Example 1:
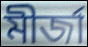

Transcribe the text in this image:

মীর্জা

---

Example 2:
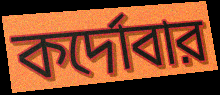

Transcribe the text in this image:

কর্দোবার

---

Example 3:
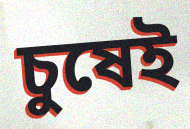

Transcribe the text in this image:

চুষেই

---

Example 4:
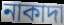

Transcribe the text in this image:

নাকাদা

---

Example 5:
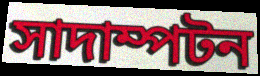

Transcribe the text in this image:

সাদাম্পটন